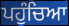
ਪਹੁੰਚਿਆ